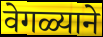
वेगळ्याने